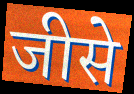
जीसे